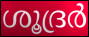
ശൂദ്രർ